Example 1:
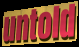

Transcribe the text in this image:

untold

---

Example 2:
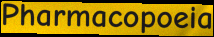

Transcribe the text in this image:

Pharmacopoeia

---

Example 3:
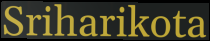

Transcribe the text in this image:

Sriharikota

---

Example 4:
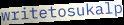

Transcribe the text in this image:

writetosukalp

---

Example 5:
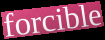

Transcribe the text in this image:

forcible